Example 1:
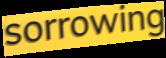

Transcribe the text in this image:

sorrowing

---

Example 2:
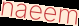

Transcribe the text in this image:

naeem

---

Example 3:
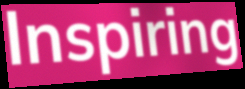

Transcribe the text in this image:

Inspiring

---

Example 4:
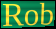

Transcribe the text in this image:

Rob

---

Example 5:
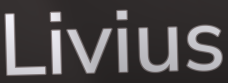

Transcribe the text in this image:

Livius